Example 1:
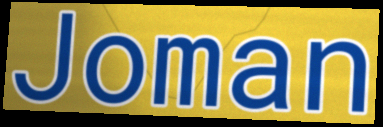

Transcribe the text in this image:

Joman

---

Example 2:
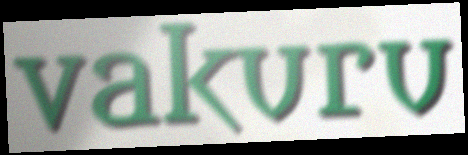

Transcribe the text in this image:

vakuru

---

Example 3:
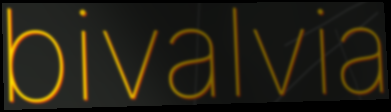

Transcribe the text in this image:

bivalvia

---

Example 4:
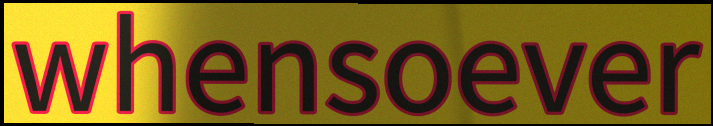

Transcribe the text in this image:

whensoever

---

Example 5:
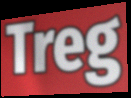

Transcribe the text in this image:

Treg